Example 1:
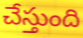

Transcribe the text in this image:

చేస్తుంది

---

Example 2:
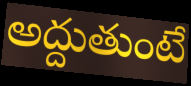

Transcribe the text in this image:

అద్దుతుంటే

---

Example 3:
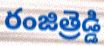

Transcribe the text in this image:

రంజిత్రెడ్డి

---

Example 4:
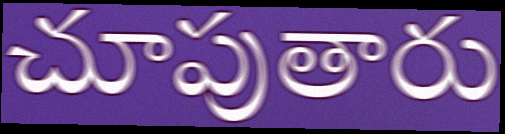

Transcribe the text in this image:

చూపుతారు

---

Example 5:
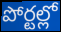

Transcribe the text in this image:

పోర్టల్లో